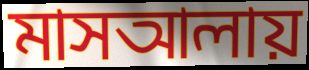
মাসআলায়